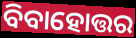
ବିବାହୋତ୍ତର